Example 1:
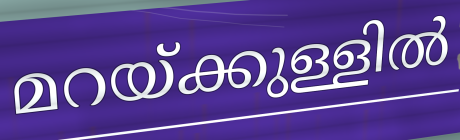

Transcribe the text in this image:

മറയ്ക്കുള്ളിൽ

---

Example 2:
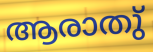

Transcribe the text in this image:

ആരാതു്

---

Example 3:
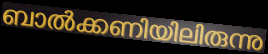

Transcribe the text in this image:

ബാൽക്കണിയിലിരുന്നു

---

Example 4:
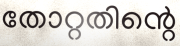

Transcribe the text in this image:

തോറ്റതിന്റെ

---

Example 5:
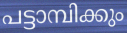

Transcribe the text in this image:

പട്ടാമ്പിക്കും